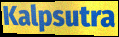
Kalpsutra